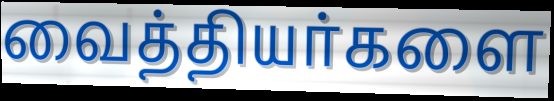
வைத்தியர்களை